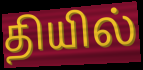
தியில்